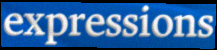
expressions